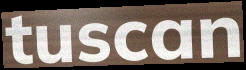
tuscan